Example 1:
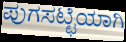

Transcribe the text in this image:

ಪುಗಸಟ್ಟೆಯಾಗಿ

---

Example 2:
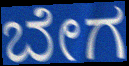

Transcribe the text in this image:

ಬೇಗ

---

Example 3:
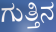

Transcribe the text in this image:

ಗುತ್ತಿನ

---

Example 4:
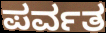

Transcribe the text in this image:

ಪರ್ವತ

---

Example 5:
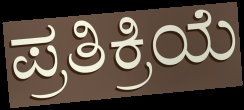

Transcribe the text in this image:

ಪ್ರತಿಕ್ರಿಯೆ